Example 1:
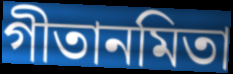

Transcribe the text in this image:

গীতানমিতা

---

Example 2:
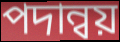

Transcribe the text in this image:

পদান্বয়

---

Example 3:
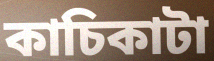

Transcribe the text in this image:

কাচিকাটা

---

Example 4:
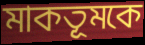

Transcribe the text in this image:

মাকতূমকে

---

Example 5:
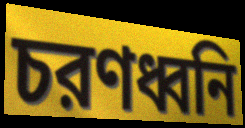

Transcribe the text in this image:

চরণধ্বনি